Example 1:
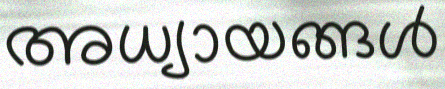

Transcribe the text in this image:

അധ്യായങ്ങൾ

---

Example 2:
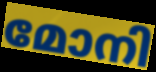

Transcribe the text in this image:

മോനി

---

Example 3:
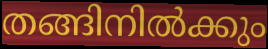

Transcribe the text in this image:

തങ്ങിനിൽക്കും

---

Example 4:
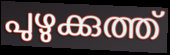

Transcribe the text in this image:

പുഴുക്കുത്ത്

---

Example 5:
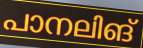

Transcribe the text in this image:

പാനലിങ്